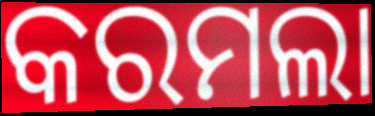
କରମଲା